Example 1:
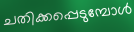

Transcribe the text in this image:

ചതിക്കപ്പെടുമ്പോൾ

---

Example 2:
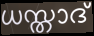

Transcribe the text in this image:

ധസ്താദ്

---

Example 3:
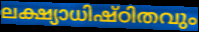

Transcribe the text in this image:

ലക്ഷ്യാധിഷ്ഠിതവും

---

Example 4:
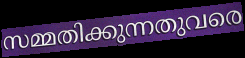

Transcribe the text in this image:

സമ്മതിക്കുന്നതുവരെ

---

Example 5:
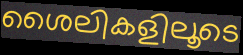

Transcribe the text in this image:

ശൈലികളിലൂടെ